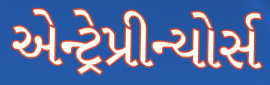
એન્ટ્રેપ્રીન્યોર્સ